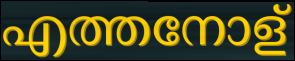
എത്തനോള്